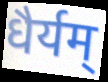
धैर्यम्